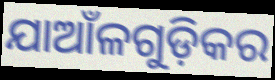
ଯାଆଁଳଗୁଡ଼ିକର